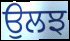
ਉਲਝ